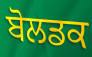
ਬੋਲਡਕ